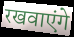
रखवाएंगे